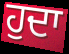
ਹੁਦਾ